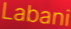
Labani